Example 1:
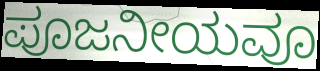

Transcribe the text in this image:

ಪೂಜನೀಯವೂ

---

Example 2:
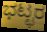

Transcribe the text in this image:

ಭಟ್ಟರ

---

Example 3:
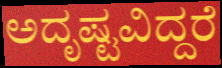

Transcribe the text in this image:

ಅದೃಷ್ಟವಿದ್ದರೆ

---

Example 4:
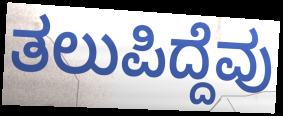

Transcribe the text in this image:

ತಲುಪಿದ್ದೆವು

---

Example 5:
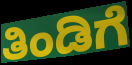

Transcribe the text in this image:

ತಿಂಡಿಗೆ